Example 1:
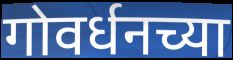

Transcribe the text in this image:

गोवर्धनच्या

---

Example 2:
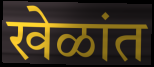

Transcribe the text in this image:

खेळांत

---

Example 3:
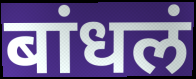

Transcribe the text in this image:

बांधलं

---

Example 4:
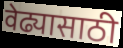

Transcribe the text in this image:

वेढ्यासाठी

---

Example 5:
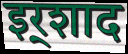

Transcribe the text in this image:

इर्शाद